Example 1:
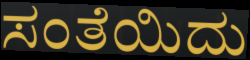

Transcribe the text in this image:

ಸಂತೆಯಿದು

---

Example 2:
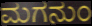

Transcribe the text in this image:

ಮಗನುಂ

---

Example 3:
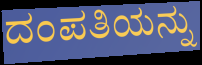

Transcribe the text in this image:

ದಂಪತಿಯನ್ನು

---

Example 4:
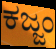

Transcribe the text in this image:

ಕಜ್ಜಂ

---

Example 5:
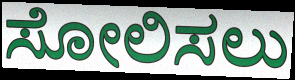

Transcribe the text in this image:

ಸೋಲಿಸಲು